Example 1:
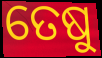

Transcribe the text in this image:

ତେଷୁ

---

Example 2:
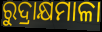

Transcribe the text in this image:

ରୁଦ୍ରାକ୍ଷମାଳା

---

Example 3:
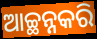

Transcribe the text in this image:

ଆଚ୍ଛନ୍ନକରି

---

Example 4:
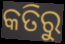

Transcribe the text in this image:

କତିରୁ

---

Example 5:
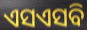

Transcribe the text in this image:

ଏସଏସବି